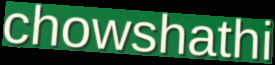
chowshathi